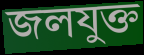
জলযুক্ত